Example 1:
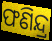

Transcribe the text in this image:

ଫଣିନ୍ଦ୍ର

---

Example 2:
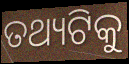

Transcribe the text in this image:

ତଥ୍ୟଟିକୁ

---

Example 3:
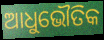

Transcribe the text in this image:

ଆଧୁଭୌତିକ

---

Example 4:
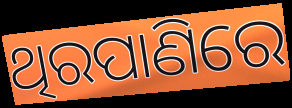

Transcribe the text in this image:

ଥିରପାଣିରେ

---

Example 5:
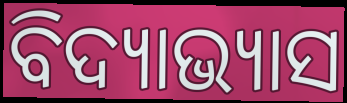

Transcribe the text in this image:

ବିଦ୍ୟାଭ୍ୟାସ